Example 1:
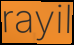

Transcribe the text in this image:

rayil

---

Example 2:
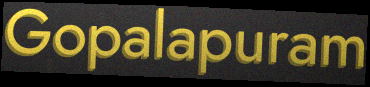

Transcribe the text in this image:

Gopalapuram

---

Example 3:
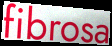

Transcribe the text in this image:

fibrosa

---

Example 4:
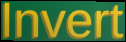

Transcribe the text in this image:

Invert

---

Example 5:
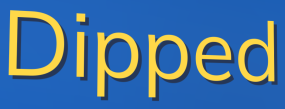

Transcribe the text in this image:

Dipped